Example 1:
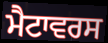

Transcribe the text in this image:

ਮੈਟਾਵਰਸ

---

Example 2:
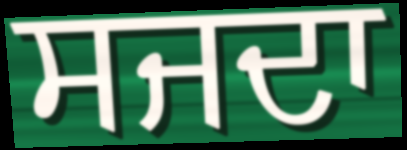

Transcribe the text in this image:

ਸਜਦਾ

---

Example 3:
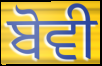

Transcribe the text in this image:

ਬੋਵੀ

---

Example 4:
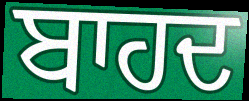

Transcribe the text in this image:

ਬਾਹਦ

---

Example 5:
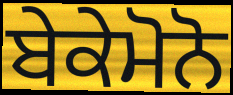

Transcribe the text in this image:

ਬੇਕੇਮੋਨੋ